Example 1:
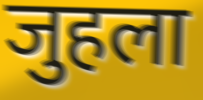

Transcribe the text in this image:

जुहला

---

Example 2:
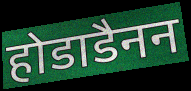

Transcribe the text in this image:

होडाडैनन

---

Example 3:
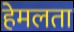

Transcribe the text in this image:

हेमलता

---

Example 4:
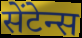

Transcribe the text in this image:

सेंटेन्स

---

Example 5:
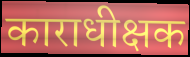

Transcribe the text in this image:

काराधीक्षक